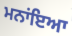
ਮਨਾਂਇਆ